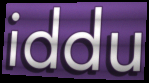
iddu